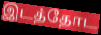
இடத்தோட